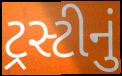
ટ્રસ્ટીનું